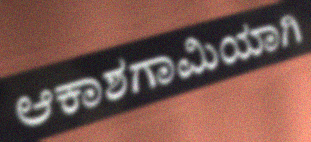
ಆಕಾಶಗಾಮಿಯಾಗಿ